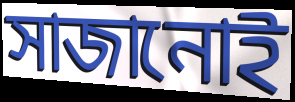
সাজানোই